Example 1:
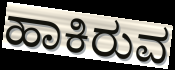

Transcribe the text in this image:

ಹಾಕಿರುವ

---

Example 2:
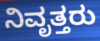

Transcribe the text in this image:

ನಿವೃತ್ತರು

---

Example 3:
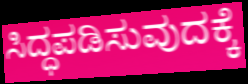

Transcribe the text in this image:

ಸಿದ್ಧಪಡಿಸುವುದಕ್ಕೆ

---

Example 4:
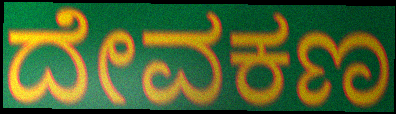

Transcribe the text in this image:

ದೇವಕಣ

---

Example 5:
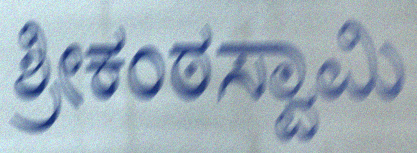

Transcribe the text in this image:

ಶ್ರೀಕಂಠಸ್ವಾಮಿ